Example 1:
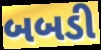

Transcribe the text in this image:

બબડી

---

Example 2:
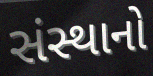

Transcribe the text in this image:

સંસ્થાનો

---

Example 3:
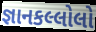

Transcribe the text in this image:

જ્ઞાનકલ્લોલો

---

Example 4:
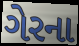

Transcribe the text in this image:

ગેરના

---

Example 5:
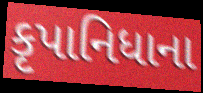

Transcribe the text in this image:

કૃપાનિધાના